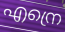
എന്രെ